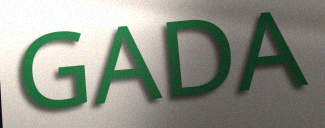
GADA